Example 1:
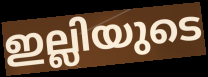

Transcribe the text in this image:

ഇല്ലിയുടെ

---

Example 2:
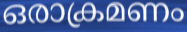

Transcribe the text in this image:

ഒരാക്രമണം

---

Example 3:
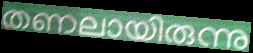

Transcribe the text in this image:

തണലായിരുന്നു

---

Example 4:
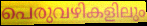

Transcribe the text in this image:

പെരുവഴികളിലും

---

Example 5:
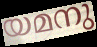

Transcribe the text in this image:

യമനു